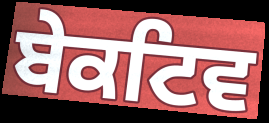
ਬੇਕਟਿਵ